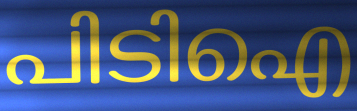
പിടിഐ